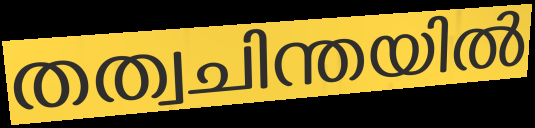
തത്വചിന്തയിൽ